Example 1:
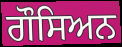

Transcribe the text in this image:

ਗੌਸਿਅਨ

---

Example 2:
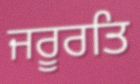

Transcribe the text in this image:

ਜਰੂਰਤਿ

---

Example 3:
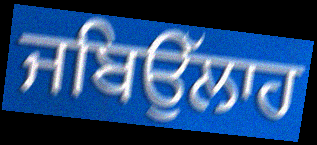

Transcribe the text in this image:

ਜਬਿਉੱਲਾਹ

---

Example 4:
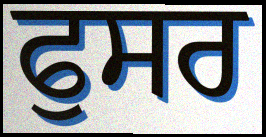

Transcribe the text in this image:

ਫੁਸਰ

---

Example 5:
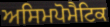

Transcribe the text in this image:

ਅਸਿਮਪੋਮੈਟਿਕ